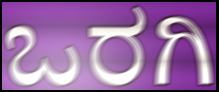
ಒರಗಿ